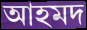
আহমদ